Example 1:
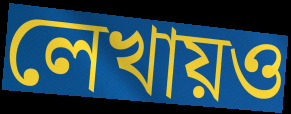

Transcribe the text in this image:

লেখায়ও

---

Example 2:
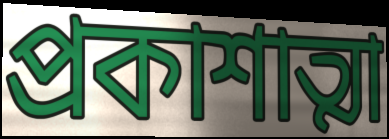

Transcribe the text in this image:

প্রকাশাত্মা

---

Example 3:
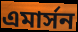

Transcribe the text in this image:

এমার্সন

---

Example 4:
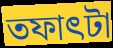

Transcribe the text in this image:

তফাৎটা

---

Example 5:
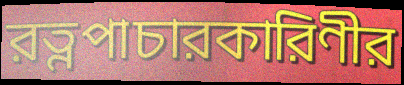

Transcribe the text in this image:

রত্নপাচারকারিণীর